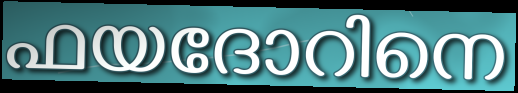
ഫയദോറിനെ